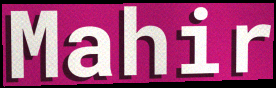
Mahir